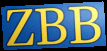
ZBB